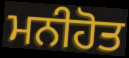
ਮਨੀਹੋਤ